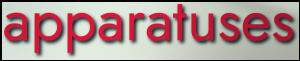
apparatuses